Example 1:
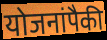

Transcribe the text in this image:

योजनांपैकी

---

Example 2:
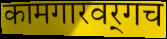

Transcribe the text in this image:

कामगारवर्गच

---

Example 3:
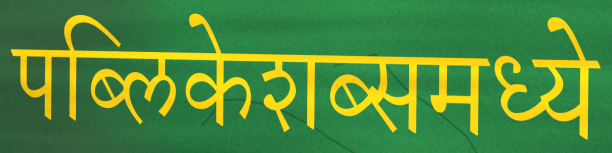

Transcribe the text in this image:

पब्लिकेशब्समध्ये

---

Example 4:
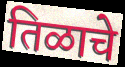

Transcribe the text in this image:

तिळाचे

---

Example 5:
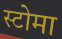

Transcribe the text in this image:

स्टोमा